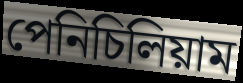
পেনিচিলিয়াম